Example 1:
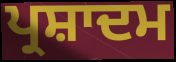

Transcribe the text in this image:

ਪ੍ਰਸ਼ਾਦਮ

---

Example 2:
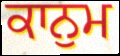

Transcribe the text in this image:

ਕਾਨੁਮ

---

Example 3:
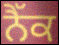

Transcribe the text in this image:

ਨੈੱਕ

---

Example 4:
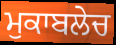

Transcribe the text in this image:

ਮੁਕਾਬਲੇਚ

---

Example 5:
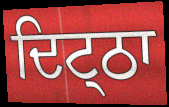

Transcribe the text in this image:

ਦਿਟ੍ਠਾ